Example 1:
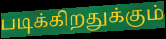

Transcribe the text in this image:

படிக்கிறதுக்கும்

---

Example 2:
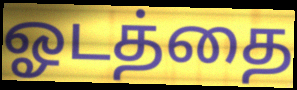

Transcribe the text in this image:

ஓடத்தை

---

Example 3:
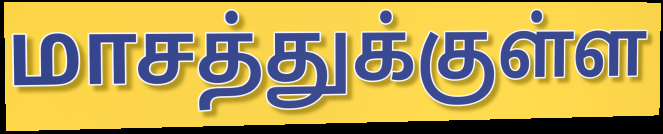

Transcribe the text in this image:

மாசத்துக்குள்ள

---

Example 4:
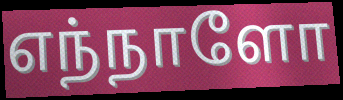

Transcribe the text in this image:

எந்நாளோ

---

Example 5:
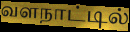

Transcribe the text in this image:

வளநாட்டில்